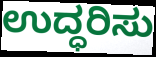
ಉದ್ಧರಿಸು